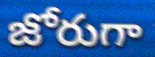
జోరుగా